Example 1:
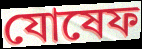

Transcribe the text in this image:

যোষেফ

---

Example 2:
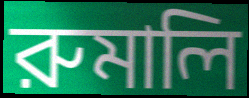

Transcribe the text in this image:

রুমালি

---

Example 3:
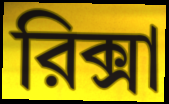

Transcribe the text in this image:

রিক্সা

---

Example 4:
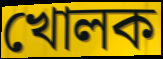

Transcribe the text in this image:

খোলক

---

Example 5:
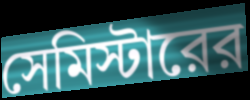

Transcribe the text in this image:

সেমিস্টারের